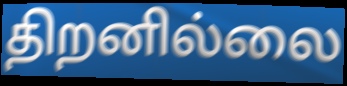
திறனில்லை